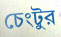
চেংটুর